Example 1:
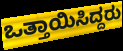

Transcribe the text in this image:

ಒತ್ತಾಯಿಸಿದ್ದರು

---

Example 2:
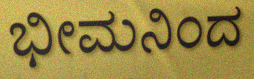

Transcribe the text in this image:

ಭೀಮನಿಂದ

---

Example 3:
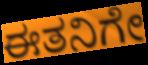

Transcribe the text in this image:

ಈತನಿಗೇ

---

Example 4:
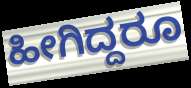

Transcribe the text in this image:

ಹೀಗಿದ್ದರೂ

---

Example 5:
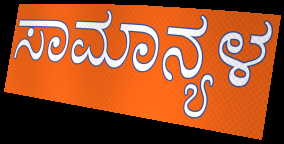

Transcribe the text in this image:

ಸಾಮಾನ್ಯಳ